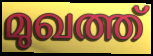
മുഖത്ത്